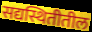
सद्यस्थितीतील